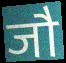
जौ